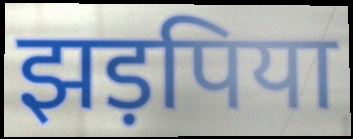
झड़पिया